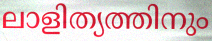
ലാളിത്യത്തിനും